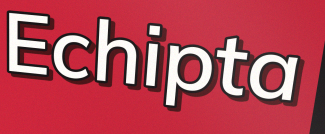
Echipta